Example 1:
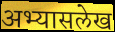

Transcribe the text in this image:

अभ्यासलेख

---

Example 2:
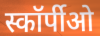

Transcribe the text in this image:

स्कॉर्पीओ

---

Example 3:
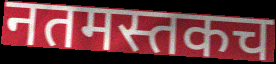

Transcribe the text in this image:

नतमस्तकच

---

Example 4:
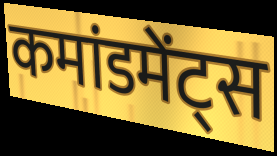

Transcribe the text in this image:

कमांडमेंट्स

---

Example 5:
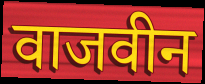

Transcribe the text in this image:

वाजवीन